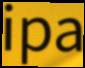
ipa